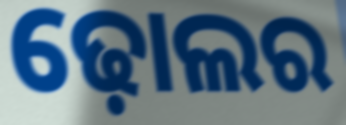
ଢ଼ୋଲର